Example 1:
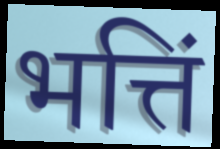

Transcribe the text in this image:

भत्तिं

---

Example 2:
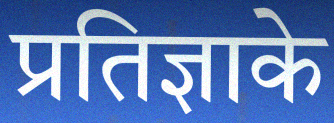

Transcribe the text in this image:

प्रतिज्ञाके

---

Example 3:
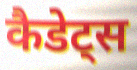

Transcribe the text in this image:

कैडेट्स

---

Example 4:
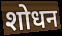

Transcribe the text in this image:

शोधन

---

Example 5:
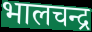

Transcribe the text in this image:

भालचन्द्र